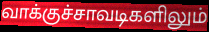
வாக்குச்சாவடிகளிலும்